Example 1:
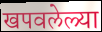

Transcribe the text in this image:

खपवलेल्या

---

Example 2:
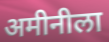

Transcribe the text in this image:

अमीनीला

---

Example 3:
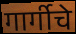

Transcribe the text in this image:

गार्गीचे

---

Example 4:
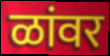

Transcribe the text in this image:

ळांवर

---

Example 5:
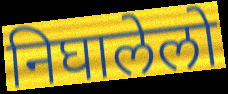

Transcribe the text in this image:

निघालेलो